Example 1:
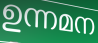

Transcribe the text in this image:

ഉന്നമന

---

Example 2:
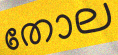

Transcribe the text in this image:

തോല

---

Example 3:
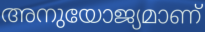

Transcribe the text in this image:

അനുയോജ്യമാണ്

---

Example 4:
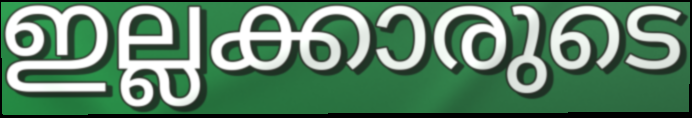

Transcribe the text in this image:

ഇല്ലക്കാരുടെ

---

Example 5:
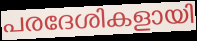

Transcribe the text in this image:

പരദേശികളായി